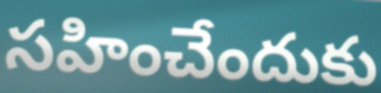
సహించేందుకు